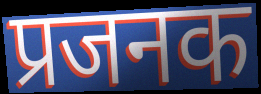
प्रजनक